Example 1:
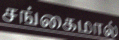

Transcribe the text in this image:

சங்கைமால்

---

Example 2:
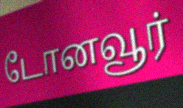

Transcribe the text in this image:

டோனவூர்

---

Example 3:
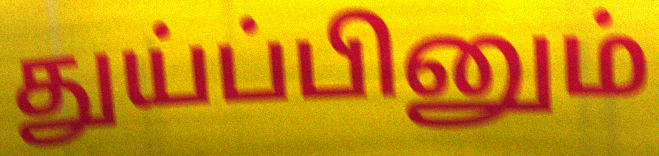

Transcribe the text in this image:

துய்ப்பினும்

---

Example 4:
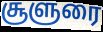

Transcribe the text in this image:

சூளுரை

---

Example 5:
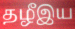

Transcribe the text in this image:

தழீஇய